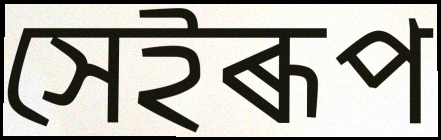
সেইৰূপ